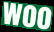
woo